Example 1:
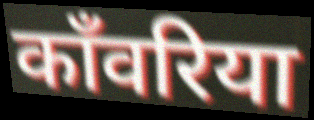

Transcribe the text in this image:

काँवरिया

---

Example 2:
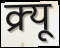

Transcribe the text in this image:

क्र्यू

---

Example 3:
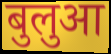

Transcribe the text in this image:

बुलुआ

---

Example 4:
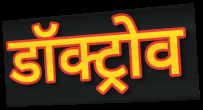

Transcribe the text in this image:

डॉक्ट्रोव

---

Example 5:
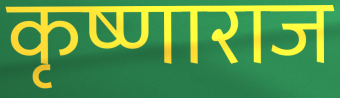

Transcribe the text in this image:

कृष्णाराज